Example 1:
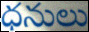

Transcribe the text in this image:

ధనులు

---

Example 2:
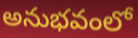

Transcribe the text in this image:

అనుభవంలో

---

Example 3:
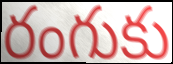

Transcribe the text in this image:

రంగుకు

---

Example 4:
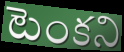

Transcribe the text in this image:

టెంకని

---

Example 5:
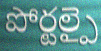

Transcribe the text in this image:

పోర్టల్పై